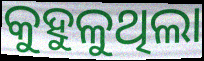
କୁହୁଳୁଥିଲା